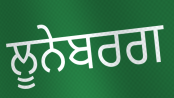
ਲੂਨੇਬਰਗ